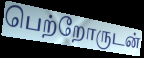
பெற்றோருடன்